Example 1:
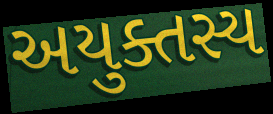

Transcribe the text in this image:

અયુક્તસ્ય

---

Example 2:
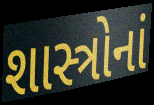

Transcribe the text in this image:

શાસ્ત્રોનાં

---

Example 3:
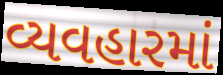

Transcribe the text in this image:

વ્યવહારમાં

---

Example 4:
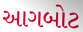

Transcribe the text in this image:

આગબોટ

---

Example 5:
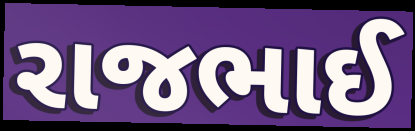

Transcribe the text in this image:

રાજભાઈ